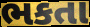
ભકતા